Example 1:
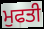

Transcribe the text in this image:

ਮੁਫਤੀ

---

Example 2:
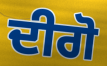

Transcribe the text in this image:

ਦੀਗੋ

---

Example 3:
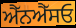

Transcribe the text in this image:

ਐੱਨਐੱਸਓ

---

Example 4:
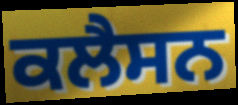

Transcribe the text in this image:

ਕਲੈਸਨ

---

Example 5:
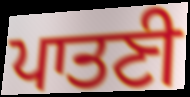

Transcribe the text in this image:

ਪਾਤਣੀ